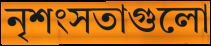
নৃশংসতাগুলো